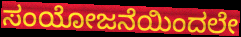
ಸಂಯೋಜನೆಯಿಂದಲೇ